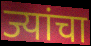
ज्यांचा